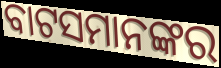
ବାଟସମାନଙ୍କର